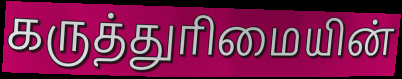
கருத்துரிமையின்